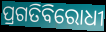
ପ୍ରଗତିବିରୋଧୀ